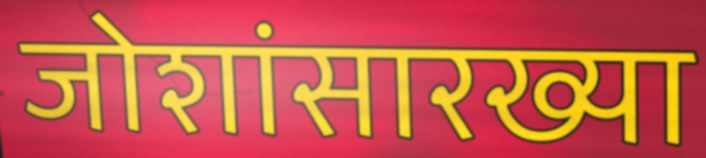
जोशांसारख्या